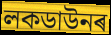
লকডাউনৰ